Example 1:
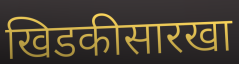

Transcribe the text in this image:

खिडकीसारखा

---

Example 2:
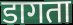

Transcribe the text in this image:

डागता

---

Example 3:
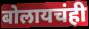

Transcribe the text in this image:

बोलायचंही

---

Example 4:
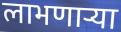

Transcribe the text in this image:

लाभणार्‍या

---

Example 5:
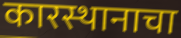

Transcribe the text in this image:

कारस्थानाचा